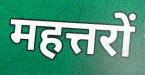
महत्तरों